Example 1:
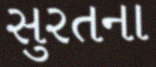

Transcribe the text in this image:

સુરતના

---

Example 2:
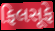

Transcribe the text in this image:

ફિલસૂફે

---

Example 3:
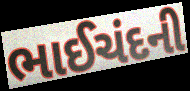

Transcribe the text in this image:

ભાઈચંદની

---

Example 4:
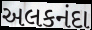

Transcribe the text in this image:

અલકનંદા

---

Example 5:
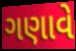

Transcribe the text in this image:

ગણાવે